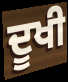
ਦੂਖੀ